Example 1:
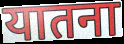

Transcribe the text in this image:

यातना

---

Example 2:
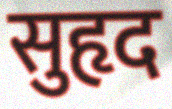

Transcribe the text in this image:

सुहृद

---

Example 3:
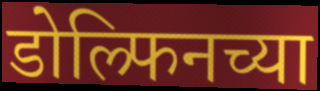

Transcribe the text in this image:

डोल्फिनच्या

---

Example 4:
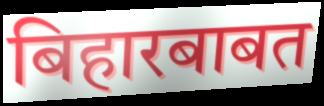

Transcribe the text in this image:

बिहारबाबत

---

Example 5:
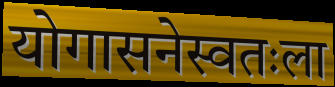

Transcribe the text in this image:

योगासनेस्वतःला